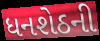
ધનશેઠની